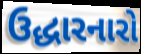
ઉદ્ધારનારો